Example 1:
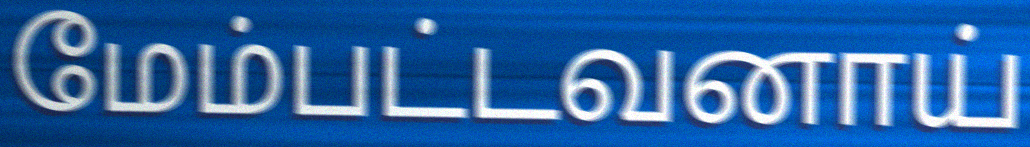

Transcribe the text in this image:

மேம்பட்டவனாய்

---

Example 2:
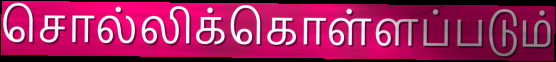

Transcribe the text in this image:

சொல்லிக்கொள்ளப்படும்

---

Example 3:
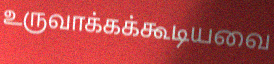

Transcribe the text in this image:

உருவாக்கக்கூடியவை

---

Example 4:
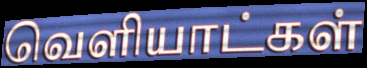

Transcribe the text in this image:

வெளியாட்கள்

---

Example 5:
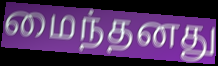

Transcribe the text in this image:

மைந்தனது